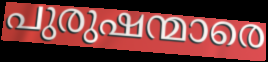
പുരുഷന്മാരെ